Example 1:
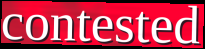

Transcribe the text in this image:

contested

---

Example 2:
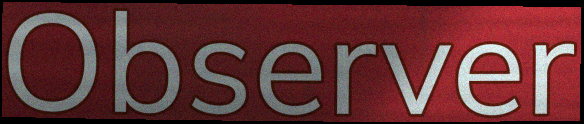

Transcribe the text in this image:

Observer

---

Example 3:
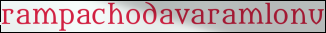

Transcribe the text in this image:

rampachodavaramlonu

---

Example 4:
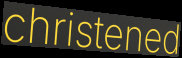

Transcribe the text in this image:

christened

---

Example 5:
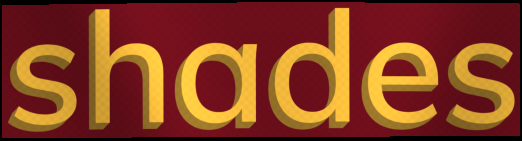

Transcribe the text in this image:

shades